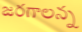
జరగాలన్న